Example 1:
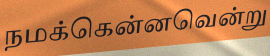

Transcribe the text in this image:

நமக்கென்னவென்று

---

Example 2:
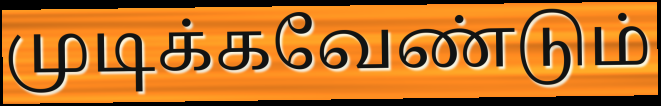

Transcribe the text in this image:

முடிக்கவேண்டும்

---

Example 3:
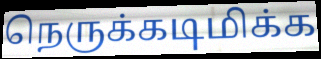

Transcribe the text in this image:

நெருக்கடிமிக்க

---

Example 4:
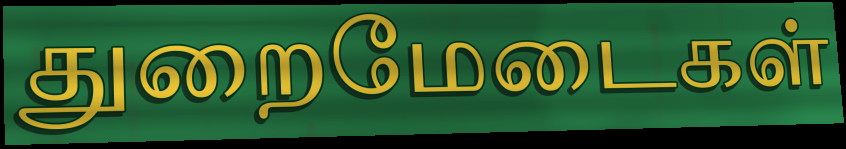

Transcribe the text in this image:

துறைமேடைகள்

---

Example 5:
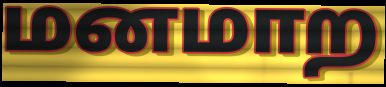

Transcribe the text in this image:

மனமாற